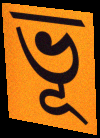
ভূ